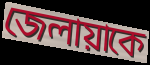
জেলায়াকে